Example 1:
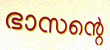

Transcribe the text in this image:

ഭാസന്റെ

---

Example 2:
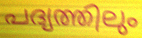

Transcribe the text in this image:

പദ്യത്തിലും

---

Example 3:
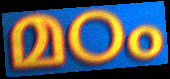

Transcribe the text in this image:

മഠം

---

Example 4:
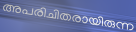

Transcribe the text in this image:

അപരിചിതരായിരുന്ന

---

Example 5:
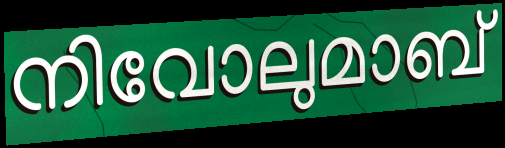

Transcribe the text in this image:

നിവോലുമാബ്